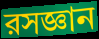
রসজ্ঞান